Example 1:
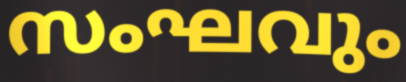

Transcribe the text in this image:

സംഘവും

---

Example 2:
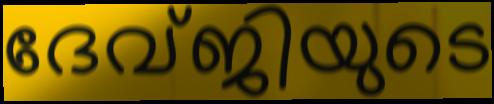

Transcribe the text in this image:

ദേവ്ജിയുടെ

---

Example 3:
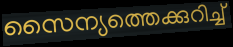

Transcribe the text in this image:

സൈന്യത്തെക്കുറിച്ച്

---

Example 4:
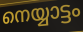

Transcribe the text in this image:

നെയ്യാട്ടം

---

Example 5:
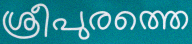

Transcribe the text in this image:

ശ്രീപുരത്തെ